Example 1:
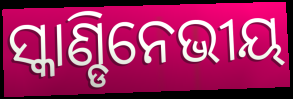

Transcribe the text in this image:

ସ୍କାଣ୍ଡିନେଭୀୟ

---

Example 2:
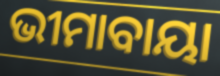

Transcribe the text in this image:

ଭୀମାବାୟା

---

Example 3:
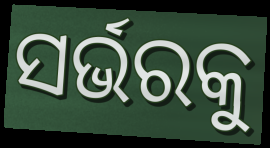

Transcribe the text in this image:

ସର୍ଭରକୁ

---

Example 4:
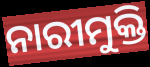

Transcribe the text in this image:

ନାରୀମୁକ୍ତି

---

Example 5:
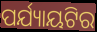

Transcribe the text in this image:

ପର୍ଯ୍ୟାୟଟିର